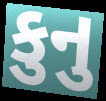
કુનુ